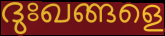
ദുഃഖങ്ങളെ